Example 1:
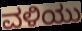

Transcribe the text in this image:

ವಳಿಯು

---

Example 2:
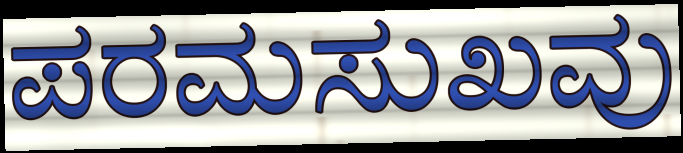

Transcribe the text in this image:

ಪರಮಸುಖವು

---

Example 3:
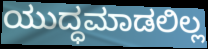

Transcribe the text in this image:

ಯುದ್ಧಮಾಡಲಿಲ್ಲ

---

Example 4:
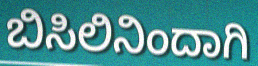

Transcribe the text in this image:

ಬಿಸಿಲಿನಿಂದಾಗಿ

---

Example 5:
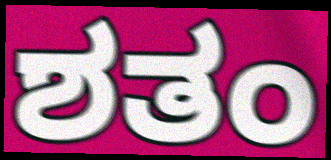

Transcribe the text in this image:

ಶತಂ